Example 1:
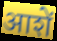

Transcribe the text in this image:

आशें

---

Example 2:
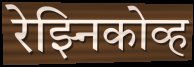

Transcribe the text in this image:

रेझ्निकोव्ह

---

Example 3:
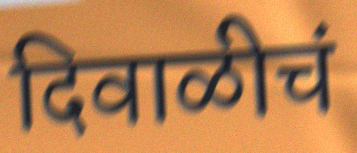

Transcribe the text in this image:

दिवाळीचं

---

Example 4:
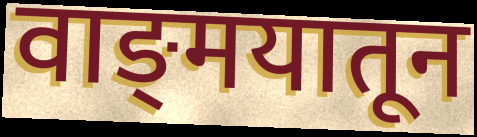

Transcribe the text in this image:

वाङ्मयातून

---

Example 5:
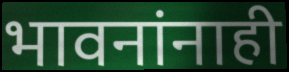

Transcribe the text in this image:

भावनांनाही